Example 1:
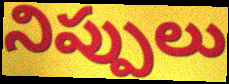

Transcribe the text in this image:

నిప్పులు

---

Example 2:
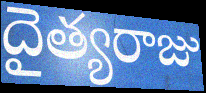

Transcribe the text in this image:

దైత్యరాజు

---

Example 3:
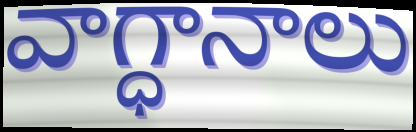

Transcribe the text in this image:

వాగ్ధానాలు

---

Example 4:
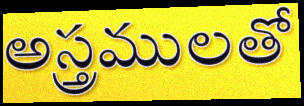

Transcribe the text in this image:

అస్త్రములతో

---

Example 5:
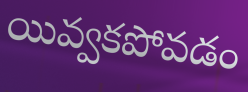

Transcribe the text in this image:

యివ్వకపోవడం